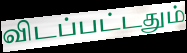
விடப்பட்டதும்